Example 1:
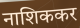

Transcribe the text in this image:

नाशिककर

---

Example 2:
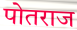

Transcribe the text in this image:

पोतराज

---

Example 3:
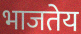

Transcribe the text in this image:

भाजतेय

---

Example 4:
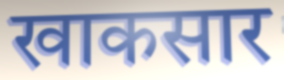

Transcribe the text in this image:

खाकसार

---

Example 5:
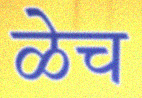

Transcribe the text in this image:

ळेच